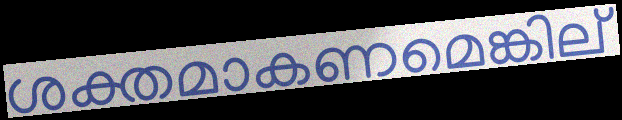
ശക്തമാകണമെങ്കില്